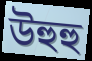
উহুহু